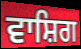
ਵਾਸ਼ਿਗ